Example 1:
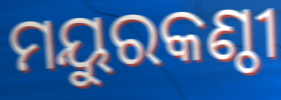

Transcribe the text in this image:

ମୟୁରକଣ୍ଠୀ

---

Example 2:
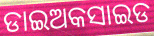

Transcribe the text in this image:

ଡାଇଅକସାଇଡ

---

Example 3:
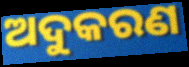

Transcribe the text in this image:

ଅଦୁକରଣ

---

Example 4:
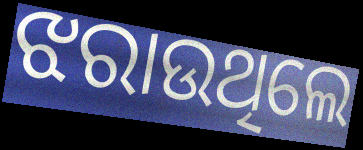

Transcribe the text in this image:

ଝରାଉଥିଲେ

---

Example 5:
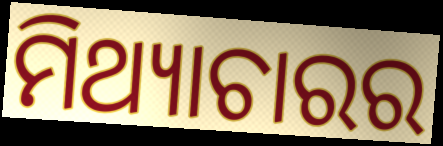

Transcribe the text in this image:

ମିଥ୍ୟାଚାରର